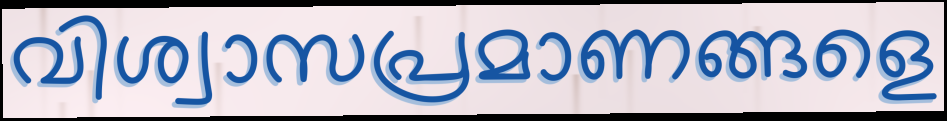
വിശ്വാസപ്രമാണങ്ങളെ